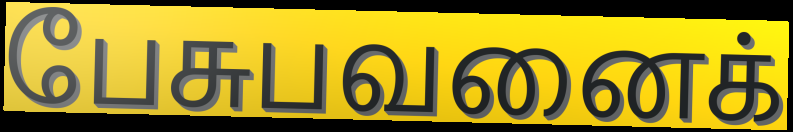
பேசுபவனைக்